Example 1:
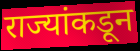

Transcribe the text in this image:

राज्यांकडून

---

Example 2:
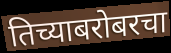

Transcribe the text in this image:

तिच्याबरोबरचा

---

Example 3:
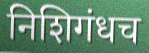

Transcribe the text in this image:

निशिगंधच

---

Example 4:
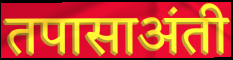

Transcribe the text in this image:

तपासाअंती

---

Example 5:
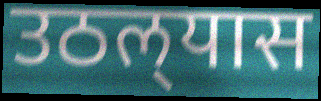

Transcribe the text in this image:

उठल्यास